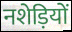
नशेड़ियों